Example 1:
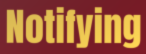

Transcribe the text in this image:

Notifying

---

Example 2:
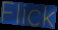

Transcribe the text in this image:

Flick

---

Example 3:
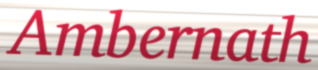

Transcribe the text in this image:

Ambernath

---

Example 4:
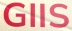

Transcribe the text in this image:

GIIS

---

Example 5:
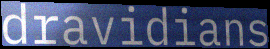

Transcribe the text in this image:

dravidians